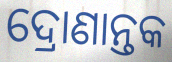
ଦ୍ରୋଣାନ୍ତକ